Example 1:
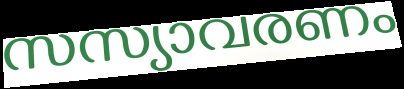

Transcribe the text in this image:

സസ്യാവരണം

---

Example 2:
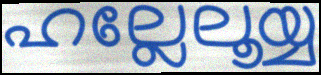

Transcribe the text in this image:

ഹല്ലേലൂയ്യ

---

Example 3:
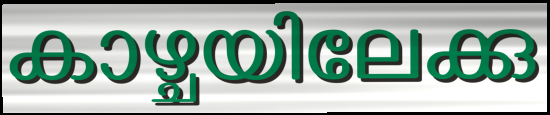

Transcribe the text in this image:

കാഴ്ചയിലേക്കു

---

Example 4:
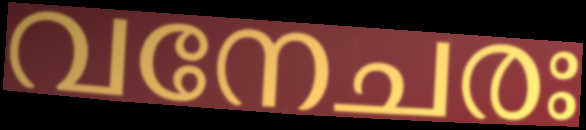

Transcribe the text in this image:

വനേചരഃ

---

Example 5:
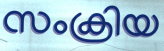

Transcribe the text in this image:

സംക്രിയ